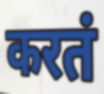
करतं